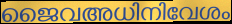
ജൈവഅധിനിവേശം